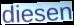
diesen